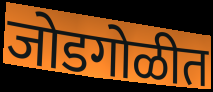
जोडगोळीत